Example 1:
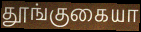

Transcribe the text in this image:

தூங்குகையா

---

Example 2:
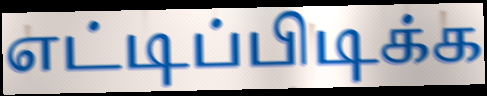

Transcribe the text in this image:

எட்டிப்பிடிக்க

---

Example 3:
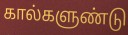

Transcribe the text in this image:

கால்களுண்டு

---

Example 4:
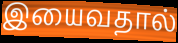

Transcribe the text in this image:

இயைவதால்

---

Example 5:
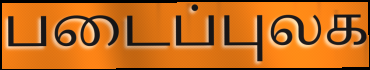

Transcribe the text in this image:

படைப்புலக